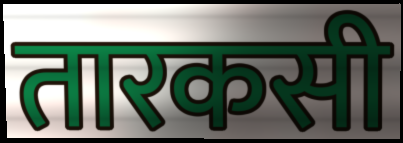
तारकसी